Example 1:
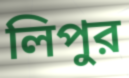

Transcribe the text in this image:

লিপুর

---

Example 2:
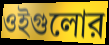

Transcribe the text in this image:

ওইগুলোর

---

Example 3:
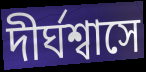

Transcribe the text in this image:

দীর্ঘশ্বাসে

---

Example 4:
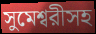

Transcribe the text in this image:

সুমেশ্বরীসহ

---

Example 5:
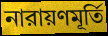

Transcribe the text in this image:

নারায়ণমূর্তি